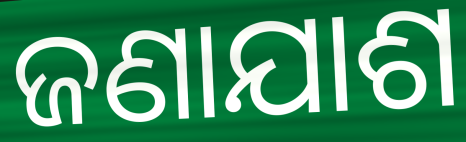
ଜଣାଯାଶ